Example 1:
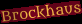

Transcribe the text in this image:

Brockhaus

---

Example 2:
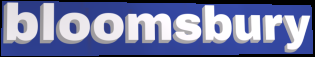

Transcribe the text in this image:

bloomsbury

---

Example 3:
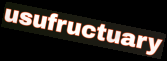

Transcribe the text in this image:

usufructuary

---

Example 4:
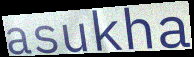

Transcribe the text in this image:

asukha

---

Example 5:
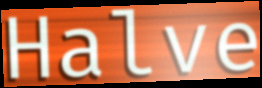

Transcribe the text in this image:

Halve